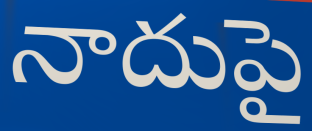
నాదుపై